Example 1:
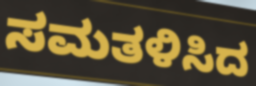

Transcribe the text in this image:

ಸಮತಳಿಸಿದ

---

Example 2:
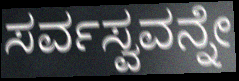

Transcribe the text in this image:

ಸರ್ವಸ್ವವನ್ನೇ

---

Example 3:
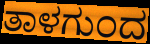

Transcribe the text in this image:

ತಾಳಗುಂದ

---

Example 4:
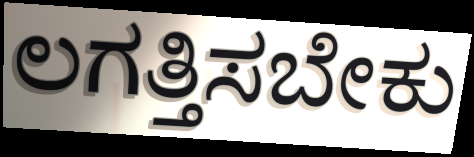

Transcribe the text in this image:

ಲಗತ್ತಿಸಬೇಕು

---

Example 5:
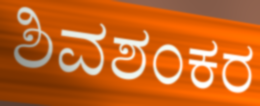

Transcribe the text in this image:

ಶಿವಶಂಕರ